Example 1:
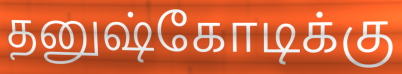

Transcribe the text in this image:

தனுஷ்கோடிக்கு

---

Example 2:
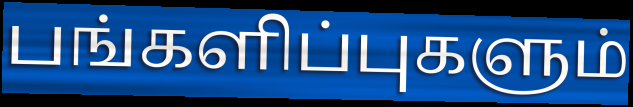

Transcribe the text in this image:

பங்களிப்புகளும்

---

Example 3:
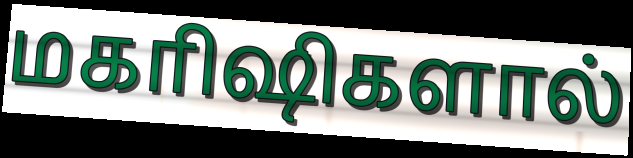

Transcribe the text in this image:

மகரிஷிகளால்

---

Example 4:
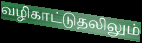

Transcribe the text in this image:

வழிகாட்டுதலிலும்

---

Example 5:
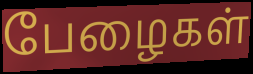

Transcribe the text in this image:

பேழைகள்